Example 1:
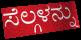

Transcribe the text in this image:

ಸೆಲ್ಗಳನ್ನು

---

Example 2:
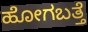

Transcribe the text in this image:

ಹೋಗಬತ್ತೆ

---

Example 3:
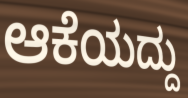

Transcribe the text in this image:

ಆಕೆಯದ್ದು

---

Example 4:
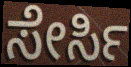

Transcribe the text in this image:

ಸೇರ್ಸಿ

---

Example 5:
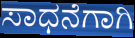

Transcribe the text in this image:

ಸಾಧನೆಗಾಗಿ